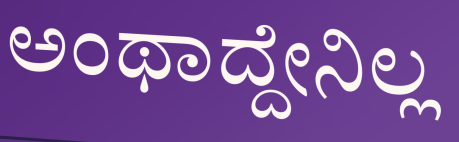
ಅಂಥಾದ್ದೇನಿಲ್ಲ